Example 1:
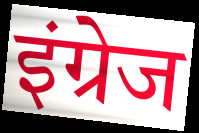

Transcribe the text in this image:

इंग्रेज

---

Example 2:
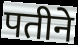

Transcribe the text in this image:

पतीने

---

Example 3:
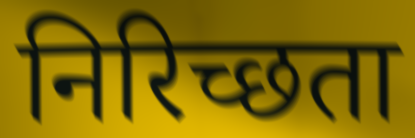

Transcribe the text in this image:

निरिच्छता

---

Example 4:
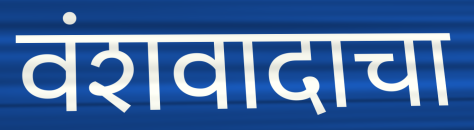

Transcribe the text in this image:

वंशवादाचा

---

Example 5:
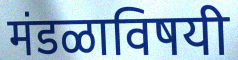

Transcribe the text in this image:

मंडळाविषयी